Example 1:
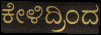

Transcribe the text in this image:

ಕೇಳಿದ್ರಿಂದ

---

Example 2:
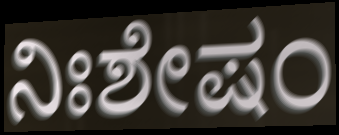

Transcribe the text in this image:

ನಿಃಶೇಷಂ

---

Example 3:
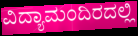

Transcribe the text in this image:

ವಿದ್ಯಾಮಂದಿರದಲ್ಲಿ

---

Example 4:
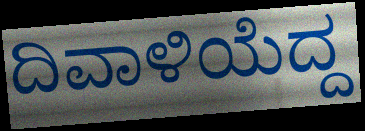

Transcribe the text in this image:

ದಿವಾಳಿಯೆದ್ದ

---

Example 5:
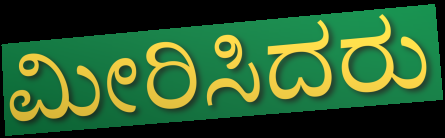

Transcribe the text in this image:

ಮೀರಿಸಿದರು